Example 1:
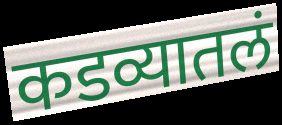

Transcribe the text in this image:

कडव्यातलं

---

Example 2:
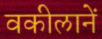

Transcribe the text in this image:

वकीलानें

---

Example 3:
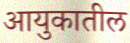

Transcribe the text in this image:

आयुकातील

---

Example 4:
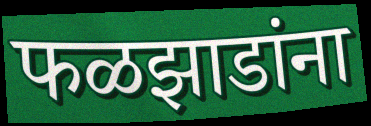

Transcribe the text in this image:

फळझाडांना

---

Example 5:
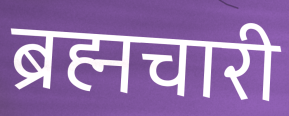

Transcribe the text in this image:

ब्रह्मचारी